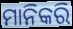
ମାନିକରି